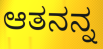
ಆತನನ್ನ